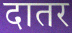
दातर